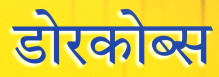
डोरकोब्स